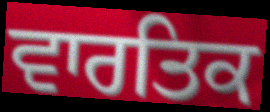
ਵਾਰਤਿਕ